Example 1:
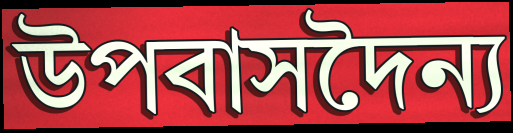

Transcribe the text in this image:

উপবাসদৈন্য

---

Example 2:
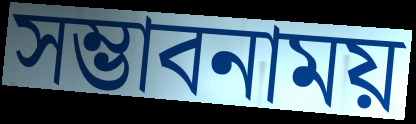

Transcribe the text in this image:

সম্ভাবনাময়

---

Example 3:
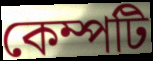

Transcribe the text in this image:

কেম্পটি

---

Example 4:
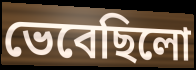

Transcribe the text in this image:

ভেবেছিলো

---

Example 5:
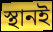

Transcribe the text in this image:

স্থানই